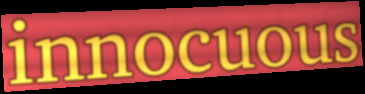
innocuous